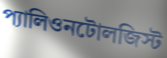
প্যালিওনটোলজিস্ট